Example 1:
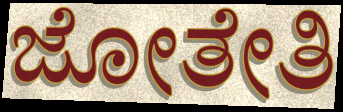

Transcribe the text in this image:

ಜೋತೇತಿ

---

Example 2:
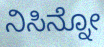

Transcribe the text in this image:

ನಿಸಿನ್ನೋ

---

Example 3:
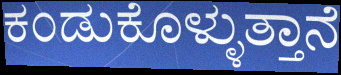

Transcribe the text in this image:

ಕಂಡುಕೊಳ್ಳುತ್ತಾನೆ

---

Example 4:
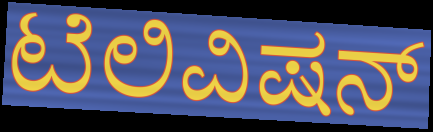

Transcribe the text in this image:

ಟೆಲಿವಿಷನ್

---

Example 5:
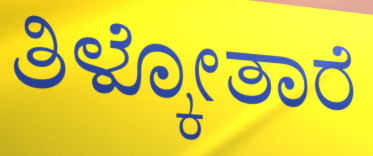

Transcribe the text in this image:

ತಿಳ್ಕೋತಾರೆ